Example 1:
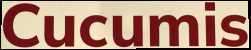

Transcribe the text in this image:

Cucumis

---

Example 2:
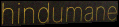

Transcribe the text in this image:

hindumane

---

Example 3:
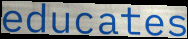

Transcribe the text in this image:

educates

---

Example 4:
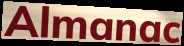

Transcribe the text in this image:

Almanac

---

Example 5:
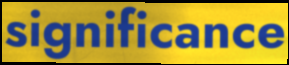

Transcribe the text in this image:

significance